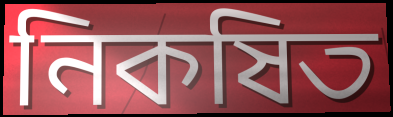
নিকষিত